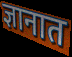
ज्ञानात